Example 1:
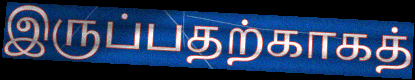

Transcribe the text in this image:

இருப்பதற்காகத்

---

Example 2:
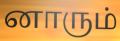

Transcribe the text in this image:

னாரும்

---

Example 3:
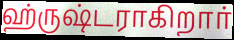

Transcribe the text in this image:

ஹ்ருஷ்டராகிறார்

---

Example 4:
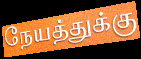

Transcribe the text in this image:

நேயத்துக்கு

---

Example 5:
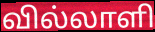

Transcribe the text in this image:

வில்லாளி